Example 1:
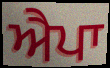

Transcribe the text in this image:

ਐਪਾ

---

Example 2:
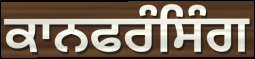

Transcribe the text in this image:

ਕਾਨਫਰੰਸਿੰਗ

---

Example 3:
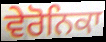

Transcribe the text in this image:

ਵੇਰੋਨਿਕਾ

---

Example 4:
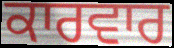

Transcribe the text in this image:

ਕਾਰਵਾਰ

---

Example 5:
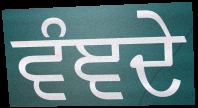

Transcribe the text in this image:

ਵੰਞਦੇ